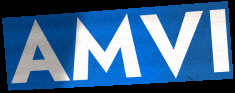
AMVI